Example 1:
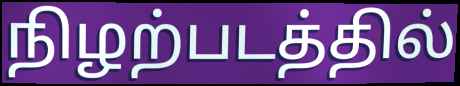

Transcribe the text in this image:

நிழற்படத்தில்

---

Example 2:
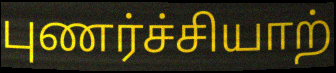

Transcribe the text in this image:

புணர்ச்சியாற்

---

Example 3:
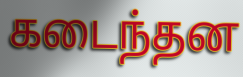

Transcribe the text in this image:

கடைந்தன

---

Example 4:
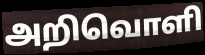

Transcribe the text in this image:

அறிவொளி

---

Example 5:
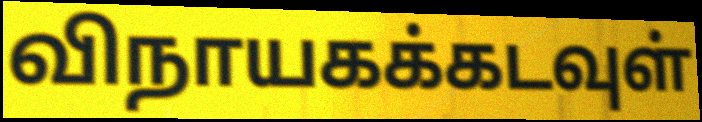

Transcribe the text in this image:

விநாயகக்கடவுள்